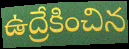
ఉద్రేకించిన